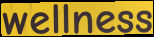
wellness